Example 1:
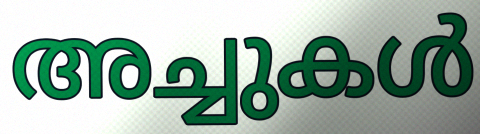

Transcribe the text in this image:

അച്ചുകൾ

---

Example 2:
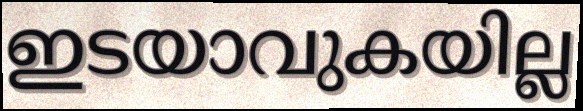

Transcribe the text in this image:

ഇടയാവുകയില്ല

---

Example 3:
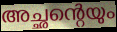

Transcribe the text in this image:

അച്ഛന്റെയും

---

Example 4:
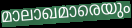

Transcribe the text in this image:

മാലാഖമാരെയും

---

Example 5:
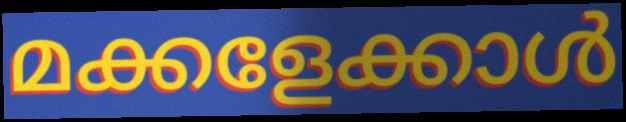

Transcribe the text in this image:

മക്കളേക്കാൾ